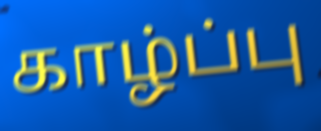
காழ்ப்பு